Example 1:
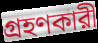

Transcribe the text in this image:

গ্রহণকারী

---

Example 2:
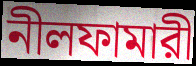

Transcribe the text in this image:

নীলফামারী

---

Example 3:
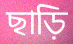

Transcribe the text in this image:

ছাড়ি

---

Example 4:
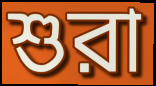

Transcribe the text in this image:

শুরা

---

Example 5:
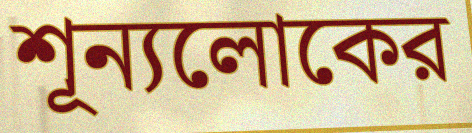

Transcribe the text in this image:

শূন্যলোকের